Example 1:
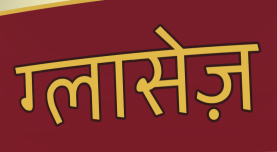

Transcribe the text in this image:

ग्लासेज़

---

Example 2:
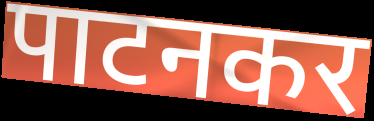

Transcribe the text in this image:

पाटनकर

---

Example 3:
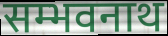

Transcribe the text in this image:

सम्भवनाथ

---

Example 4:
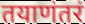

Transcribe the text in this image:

तयाणंतरं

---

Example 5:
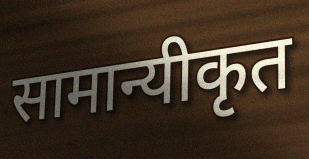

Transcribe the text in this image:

सामान्यीकृत